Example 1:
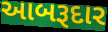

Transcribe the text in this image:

આબરૂદાર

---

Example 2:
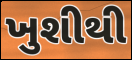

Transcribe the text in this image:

ખુશીથી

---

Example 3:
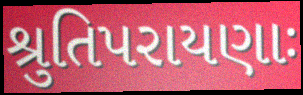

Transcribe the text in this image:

શ્રુતિપરાયણાઃ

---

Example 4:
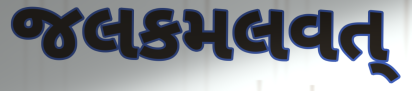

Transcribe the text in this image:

જલકમલવત્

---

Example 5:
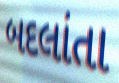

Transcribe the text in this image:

બદલાંતા